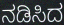
ನಡಿಸಿದ